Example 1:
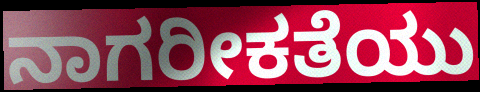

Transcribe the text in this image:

ನಾಗರೀಕತೆಯು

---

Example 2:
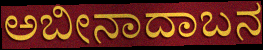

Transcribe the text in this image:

ಅಬೀನಾದಾಬನ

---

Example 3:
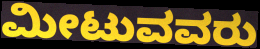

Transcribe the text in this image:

ಮೀಟುವವರು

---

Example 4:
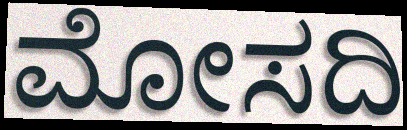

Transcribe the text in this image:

ಮೋಸದಿ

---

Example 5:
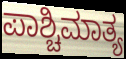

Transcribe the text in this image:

ಪಾಶ್ಚಿಮಾತ್ಯ